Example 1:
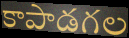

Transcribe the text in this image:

కాపాడగల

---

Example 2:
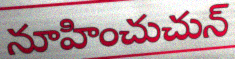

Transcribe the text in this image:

నూహించుచున్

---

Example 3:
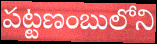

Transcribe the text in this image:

పట్టణంబులోని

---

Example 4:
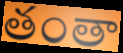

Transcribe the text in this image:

తంతా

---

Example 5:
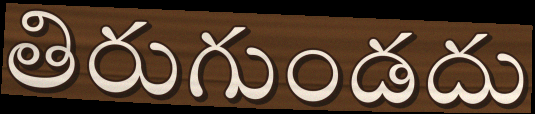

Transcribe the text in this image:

తిరుగుండదు